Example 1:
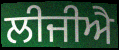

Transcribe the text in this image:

ਲੀਜੀਐ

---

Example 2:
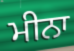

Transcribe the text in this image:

ਮੀਨਾ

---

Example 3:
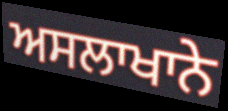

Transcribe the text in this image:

ਅਸਲਾਖਾਨੇ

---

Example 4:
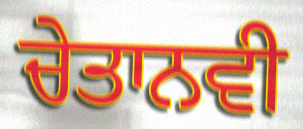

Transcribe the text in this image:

ਚੇਤਾਨਵੀ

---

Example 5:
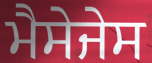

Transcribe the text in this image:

ਮੈਸੇਜੇਸ